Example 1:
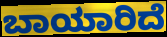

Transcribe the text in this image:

ಬಾಯಾರಿದೆ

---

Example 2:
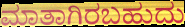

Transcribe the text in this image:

ಮಾತಾಗಿರಬಹುದು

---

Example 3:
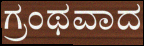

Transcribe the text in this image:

ಗ್ರಂಥವಾದ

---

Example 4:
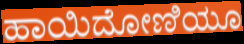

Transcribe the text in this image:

ಹಾಯಿದೋಣಿಯೂ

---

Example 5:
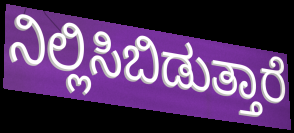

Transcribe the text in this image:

ನಿಲ್ಲಿಸಿಬಿಡುತ್ತಾರೆ